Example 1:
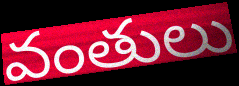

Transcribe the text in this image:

వంతులు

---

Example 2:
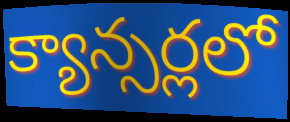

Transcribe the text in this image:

క్యాన్సర్లలో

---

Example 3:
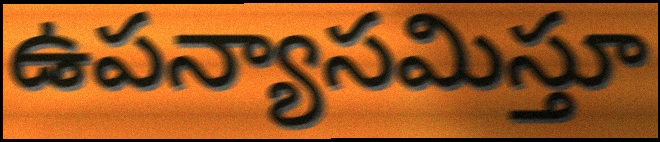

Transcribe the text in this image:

ఉపన్యాసమిస్తూ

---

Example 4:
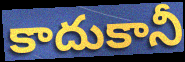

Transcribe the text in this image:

కాదుకానీ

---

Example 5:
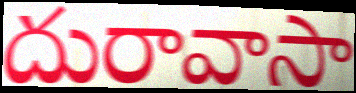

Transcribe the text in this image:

దురావాసా